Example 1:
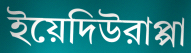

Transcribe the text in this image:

ইয়েদিউরাপ্পা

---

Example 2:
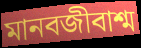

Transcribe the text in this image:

মানবজীবাশ্ম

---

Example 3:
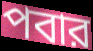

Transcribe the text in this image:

পবার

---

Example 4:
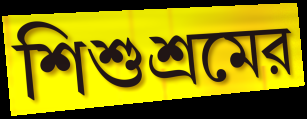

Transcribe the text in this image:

শিশুশ্রমের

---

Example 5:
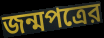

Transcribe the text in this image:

জন্মপত্রের